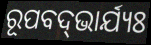
ରୂପବଦ୍‌ଭାର୍ଯ୍ୟଃ